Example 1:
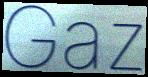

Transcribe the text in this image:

Gaz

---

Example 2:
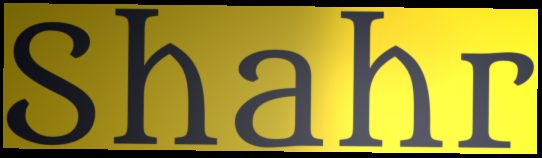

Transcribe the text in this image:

Shahr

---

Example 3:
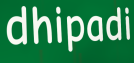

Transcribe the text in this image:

dhipadi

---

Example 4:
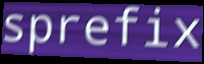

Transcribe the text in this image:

sprefix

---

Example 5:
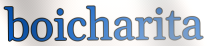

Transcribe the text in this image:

boicharita